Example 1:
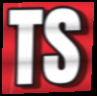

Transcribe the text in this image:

TS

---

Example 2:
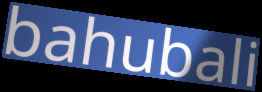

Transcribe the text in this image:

bahubali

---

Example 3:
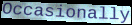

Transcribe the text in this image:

Occasionally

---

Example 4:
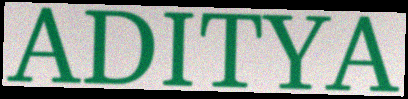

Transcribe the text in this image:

ADITYA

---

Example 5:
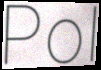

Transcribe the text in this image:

Pol